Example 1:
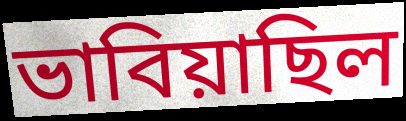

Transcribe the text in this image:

ভাবিয়াছিল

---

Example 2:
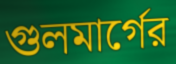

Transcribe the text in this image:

গুলমার্গের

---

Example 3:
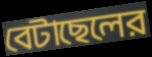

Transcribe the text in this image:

বেটাছেলের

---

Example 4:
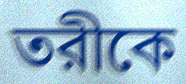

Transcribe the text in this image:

তরীকে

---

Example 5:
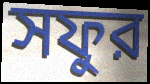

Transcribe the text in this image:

সফুর